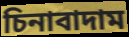
চিনাবাদাম